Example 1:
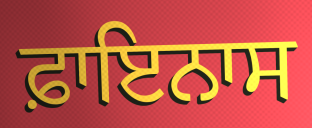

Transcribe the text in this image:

ਫ਼ਾਇਨਾਸ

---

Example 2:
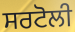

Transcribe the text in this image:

ਸਰਟੋਲੀ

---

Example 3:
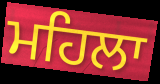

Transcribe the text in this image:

ਮਹਿਲਾ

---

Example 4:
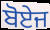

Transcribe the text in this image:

ਬੋਏਜ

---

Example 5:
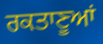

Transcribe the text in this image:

ਰਕਤਾਣੂਆਂ